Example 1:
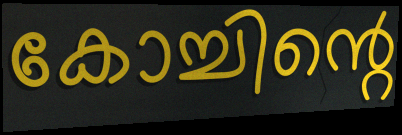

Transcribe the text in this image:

കോച്ചിന്റെ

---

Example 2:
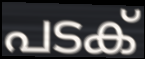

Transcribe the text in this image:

പടക്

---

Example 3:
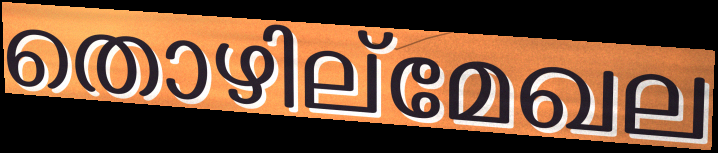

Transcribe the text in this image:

തൊഴില്മേഖല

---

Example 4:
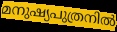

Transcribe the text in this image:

മനുഷ്യപുത്രനിൽ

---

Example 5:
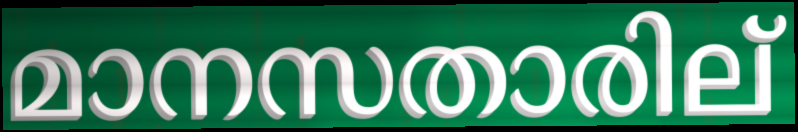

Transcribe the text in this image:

മാനസതാരില്